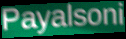
Payalsoni